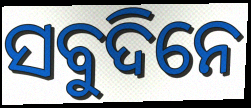
ସବୁଦିନେ